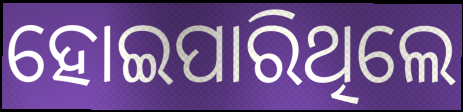
ହୋଇପାରିଥିଲେ